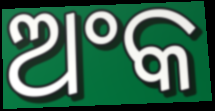
ଅଂକ